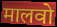
मालवो